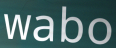
wabo